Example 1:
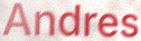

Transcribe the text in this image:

Andres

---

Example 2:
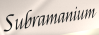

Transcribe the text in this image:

Subramanium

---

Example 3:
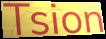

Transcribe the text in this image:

Tsion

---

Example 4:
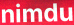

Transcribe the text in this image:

nimdu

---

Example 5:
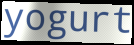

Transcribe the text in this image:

yogurt